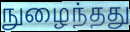
நுழைந்தது